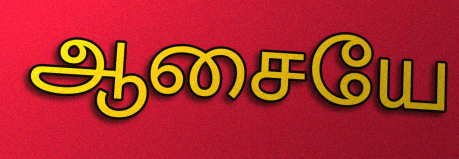
ஆசையே